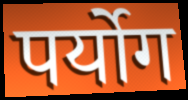
पर्योग